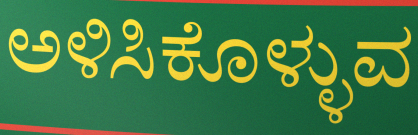
ಅಳಿಸಿಕೊಳ್ಳುವ